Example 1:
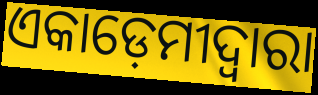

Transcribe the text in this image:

ଏକାଡ଼େମୀଦ୍ଵାରା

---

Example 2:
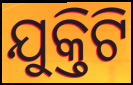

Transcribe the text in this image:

ଯୁକ୍ତିଟି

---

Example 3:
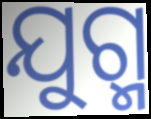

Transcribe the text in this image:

ଯୁଗ୍ମ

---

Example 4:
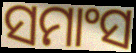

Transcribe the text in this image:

ସମାଂସ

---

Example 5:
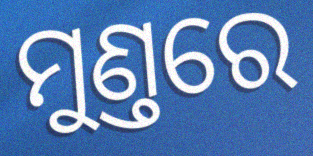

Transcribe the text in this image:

ମୁଣ୍ତରେ